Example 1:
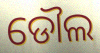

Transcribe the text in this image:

ଡୌଲ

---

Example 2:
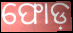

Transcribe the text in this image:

ଫୋଡ଼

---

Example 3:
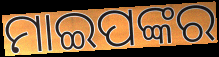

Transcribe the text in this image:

ମାଇପଙ୍କର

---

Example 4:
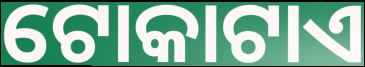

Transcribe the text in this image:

ଟୋକାଟାଏ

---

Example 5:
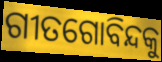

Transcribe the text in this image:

ଗୀତଗୋବିନ୍ଦକୁ